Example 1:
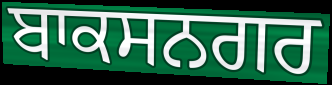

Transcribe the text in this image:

ਬਾਕਸਨਗਰ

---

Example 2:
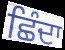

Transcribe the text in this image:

ਛਿੰਦਾ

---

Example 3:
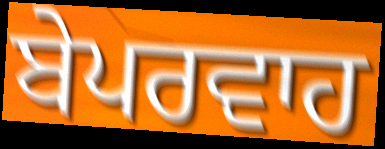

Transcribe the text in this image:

ਬੇਪਰਵਾਹ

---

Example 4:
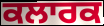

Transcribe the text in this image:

ਕਲਾਰਕ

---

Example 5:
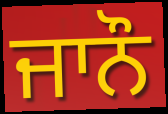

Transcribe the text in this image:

ਜਾਨੌ